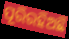
ପୂରିରହିଅଛି